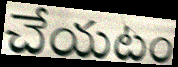
చేయటం